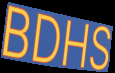
BDHS